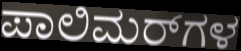
ಪಾಲಿಮರ್‌ಗಳ